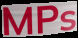
MPs